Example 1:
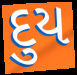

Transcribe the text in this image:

દુય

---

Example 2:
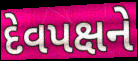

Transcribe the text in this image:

દેવપક્ષને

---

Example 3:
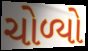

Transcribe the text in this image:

ચોળ્યો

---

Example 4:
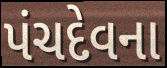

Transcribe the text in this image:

પંચદેવના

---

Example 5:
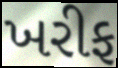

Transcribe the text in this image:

ખરીફ